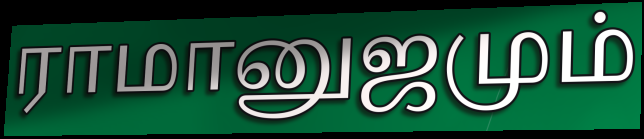
ராமானுஜமும்